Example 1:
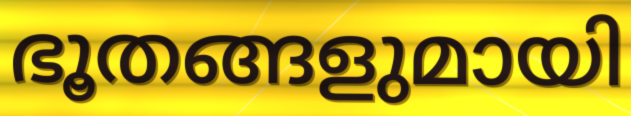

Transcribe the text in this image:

ഭൂതങ്ങളുമായി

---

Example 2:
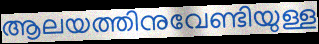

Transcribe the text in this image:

ആലയത്തിനുവേണ്ടിയുള്ള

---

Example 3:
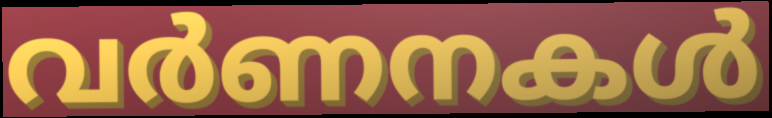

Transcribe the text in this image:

വർണനകൾ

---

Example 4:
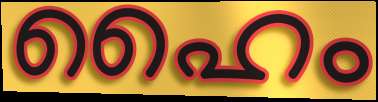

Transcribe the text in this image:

ഹൈം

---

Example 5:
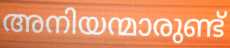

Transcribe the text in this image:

അനിയന്മാരുണ്ട്